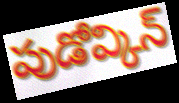
పుడోవ్కిన్